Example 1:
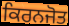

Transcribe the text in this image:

ਕਿਰਨਜੋਤ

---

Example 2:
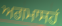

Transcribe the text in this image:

ਅਗਮਾਸਹਂ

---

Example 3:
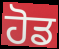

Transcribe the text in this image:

ਹੋਡ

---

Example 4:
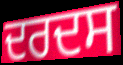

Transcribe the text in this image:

ਦਰਦਸ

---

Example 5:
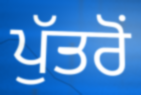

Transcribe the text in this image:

ਪੁੱਤਰੋਂ